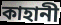
কাহানী